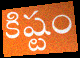
కిష్టం